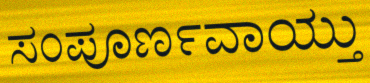
ಸಂಪೂರ್ಣವಾಯ್ತು